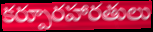
కర్పూరహారతులు